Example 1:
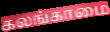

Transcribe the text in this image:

கலங்காமை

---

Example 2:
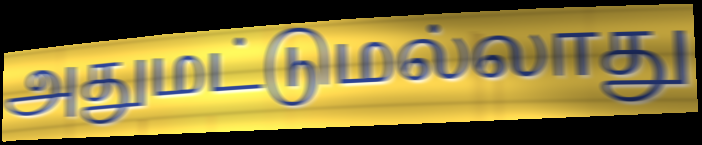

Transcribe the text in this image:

அதுமட்டுமல்லாது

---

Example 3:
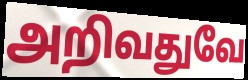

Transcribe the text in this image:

அறிவதுவே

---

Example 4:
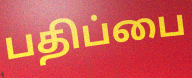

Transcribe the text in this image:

பதிப்பை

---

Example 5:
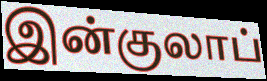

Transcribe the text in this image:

இன்குலாப்